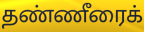
தண்ணீரைக்